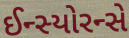
ઈન્સ્યોરન્સે